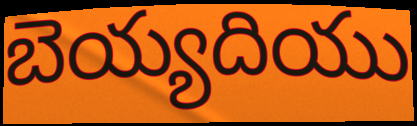
బెయ్యదియు